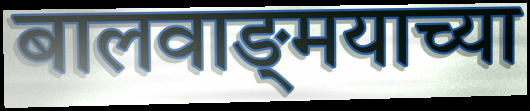
बालवाङ्‌मयाच्या